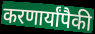
करणार्यांपैकी